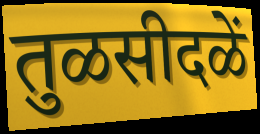
तुळसीदळें